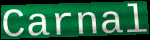
Carnal